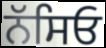
ਨੱਸਿਓ